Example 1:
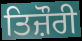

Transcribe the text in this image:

ਤਿਜ਼ੌਰੀ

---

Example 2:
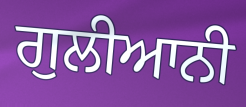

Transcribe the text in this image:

ਗੁਲੀਆਨੀ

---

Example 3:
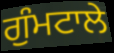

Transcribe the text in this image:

ਗੁੰਮਟਾਲੇ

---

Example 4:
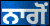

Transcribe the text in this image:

ਨਾਗੋਂ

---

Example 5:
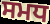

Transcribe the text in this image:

ਸਮਧ